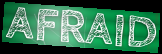
AFRAID